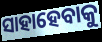
ସାହାହେବାକୁ